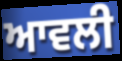
ਆਵਲੀ